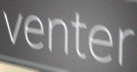
venter